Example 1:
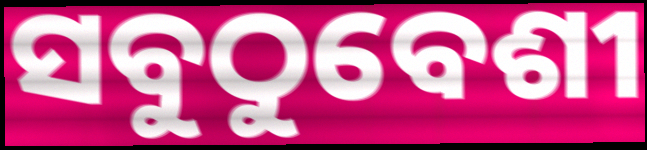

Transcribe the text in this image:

ସବୁଠୁବେଶୀ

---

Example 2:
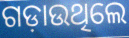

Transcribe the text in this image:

ଗଡ଼ାଉଥିଲେ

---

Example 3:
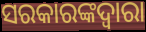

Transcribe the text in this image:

ସରକାରଙ୍କଦ୍ବାରା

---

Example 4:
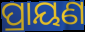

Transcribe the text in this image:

ପ୍ରାୟଣ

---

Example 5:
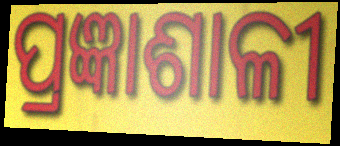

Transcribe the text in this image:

ପ୍ରଜ୍ଞାଶାଳୀ